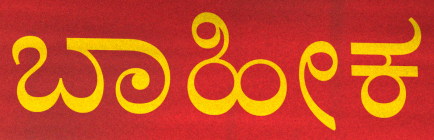
ಬಾಹೀಕ